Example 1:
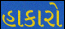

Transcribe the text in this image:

હાકારો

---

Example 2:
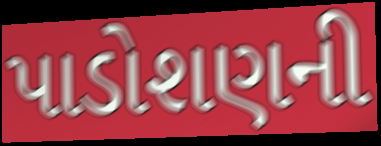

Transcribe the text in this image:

પાડોશણની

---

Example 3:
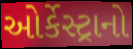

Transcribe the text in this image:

ઓર્કેસ્ટ્રાનો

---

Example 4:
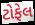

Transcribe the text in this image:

ટોફેલ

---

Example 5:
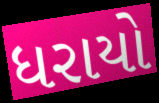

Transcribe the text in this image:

ધરાયો